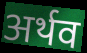
अर्थव